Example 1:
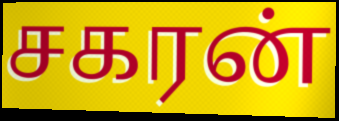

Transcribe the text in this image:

சகரன்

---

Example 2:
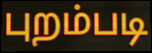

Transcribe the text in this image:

புறம்படி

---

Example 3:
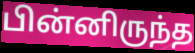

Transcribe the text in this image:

பின்னிருந்த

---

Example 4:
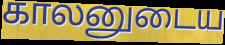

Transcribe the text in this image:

காலனுடைய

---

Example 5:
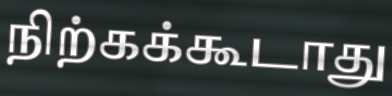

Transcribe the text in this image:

நிற்கக்கூடாது